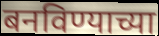
बनविण्याच्या